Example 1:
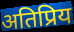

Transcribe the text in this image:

अतिप्रिय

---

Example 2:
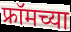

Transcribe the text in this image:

फ्रॉमच्या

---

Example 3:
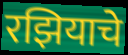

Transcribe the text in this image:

रझियाचे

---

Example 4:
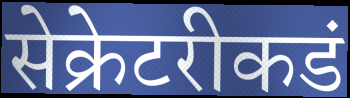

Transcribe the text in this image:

सेक्रेटरीकडं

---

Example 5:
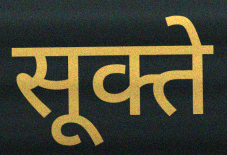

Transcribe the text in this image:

सूक्ते